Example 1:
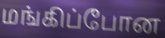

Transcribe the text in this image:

மங்கிப்போன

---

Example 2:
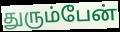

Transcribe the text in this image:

துரும்பேன்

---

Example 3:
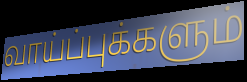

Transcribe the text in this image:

வாய்ப்புக்களும்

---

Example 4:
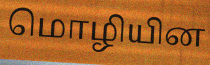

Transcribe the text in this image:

மொழியின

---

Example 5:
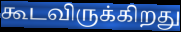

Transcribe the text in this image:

கூடவிருக்கிறது